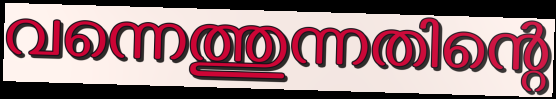
വന്നെത്തുന്നതിന്റെ